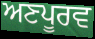
ਅਣਪੂਰਵ